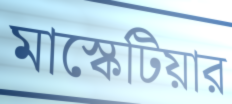
মাস্কেটিয়ার